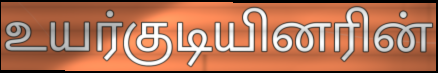
உயர்குடியினரின்